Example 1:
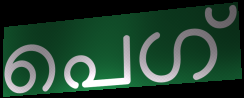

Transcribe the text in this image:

പെഗ്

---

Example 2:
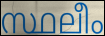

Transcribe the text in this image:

സ്ഥലീം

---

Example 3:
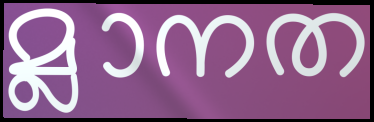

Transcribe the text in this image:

മ്ലാനത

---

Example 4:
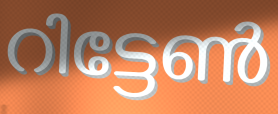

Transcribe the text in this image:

റിട്ടേൺ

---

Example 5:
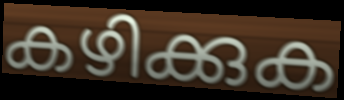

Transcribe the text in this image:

കഴിക്കുക